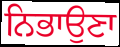
ਨਿਭਾਉਣਾ